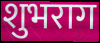
शुभराग